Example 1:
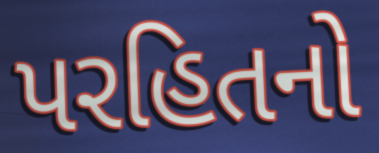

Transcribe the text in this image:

પરહિતનો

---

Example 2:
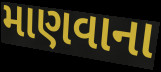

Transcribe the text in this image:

માણવાના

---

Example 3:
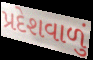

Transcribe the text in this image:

પ્રદેશવાળું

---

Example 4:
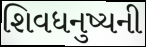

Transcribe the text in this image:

શિવધનુષ્યની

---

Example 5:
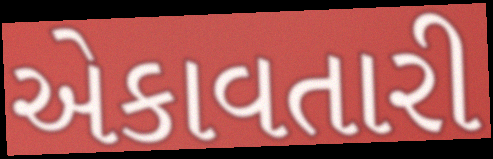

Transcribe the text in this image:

એકાવતારી